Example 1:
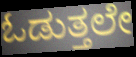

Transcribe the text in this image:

ಓಡುತ್ತಲೇ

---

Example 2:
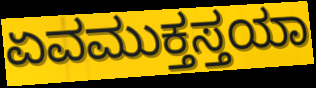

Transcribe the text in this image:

ಏವಮುಕ್ತಸ್ತಯಾ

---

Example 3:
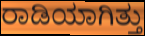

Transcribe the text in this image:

ರಾಡಿಯಾಗಿತ್ತು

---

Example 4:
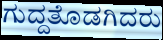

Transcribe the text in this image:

ಗುದ್ದತೊಡಗಿದರು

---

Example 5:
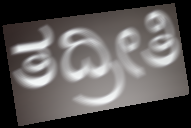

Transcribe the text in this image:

ತದ್ರೀತಿ